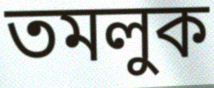
তমলুক